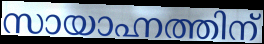
സായാഹ്നത്തിന്